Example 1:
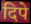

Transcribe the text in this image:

दिपे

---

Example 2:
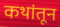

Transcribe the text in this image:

कथांतून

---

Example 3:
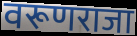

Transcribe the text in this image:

वरूणराजा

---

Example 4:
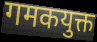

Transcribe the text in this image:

गमकयुक्त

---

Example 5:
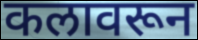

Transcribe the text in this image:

कलावरून